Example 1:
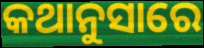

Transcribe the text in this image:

କଥାନୁସାରେ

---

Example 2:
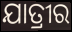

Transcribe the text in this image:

ଯାତ୍ରୀର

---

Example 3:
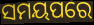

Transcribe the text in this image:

ସମୟପରେ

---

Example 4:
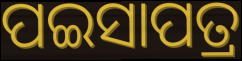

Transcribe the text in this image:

ପଇସାପତ୍ର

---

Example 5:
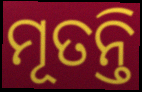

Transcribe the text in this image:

ମୂତନ୍ତି